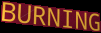
BURNING